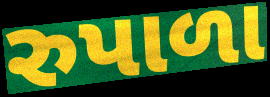
રુપાળા